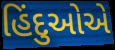
હિંદુઓએ